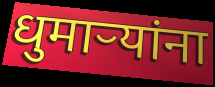
धुमाऱ्यांना